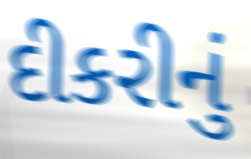
દીકરીનું